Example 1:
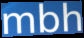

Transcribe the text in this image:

mbh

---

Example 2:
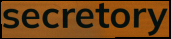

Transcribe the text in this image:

secretory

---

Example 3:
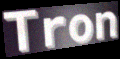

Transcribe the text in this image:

Tron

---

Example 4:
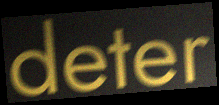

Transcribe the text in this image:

deter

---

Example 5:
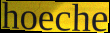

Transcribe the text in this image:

hoeche